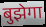
बुझेगा